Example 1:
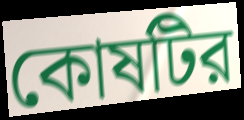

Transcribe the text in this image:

কোষটির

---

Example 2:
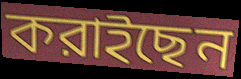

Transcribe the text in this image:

করাইছেন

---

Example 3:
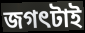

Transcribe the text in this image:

জগৎটাই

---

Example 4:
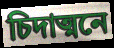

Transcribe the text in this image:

চিদাত্মনে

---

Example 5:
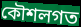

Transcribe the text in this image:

কৌশলগত